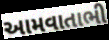
આમવાતાભી